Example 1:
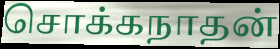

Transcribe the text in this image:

சொக்கநாதன்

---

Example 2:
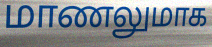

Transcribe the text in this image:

மாணலுமாக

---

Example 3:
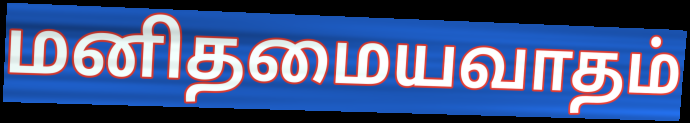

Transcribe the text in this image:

மனிதமையவாதம்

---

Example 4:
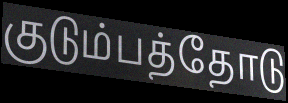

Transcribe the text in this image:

குடும்பத்தோடு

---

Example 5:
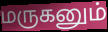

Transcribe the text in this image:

மருகனும்